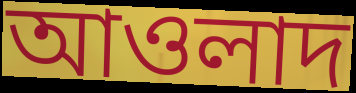
আওলাদ